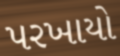
પરખાયો